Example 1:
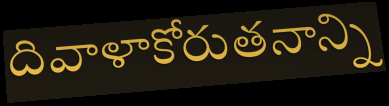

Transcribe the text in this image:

దివాళాకోరుతనాన్ని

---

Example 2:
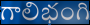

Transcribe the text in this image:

గాలిభంగి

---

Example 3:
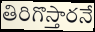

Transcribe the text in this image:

తిరిగొస్తారనే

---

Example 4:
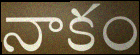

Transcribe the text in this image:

నాకం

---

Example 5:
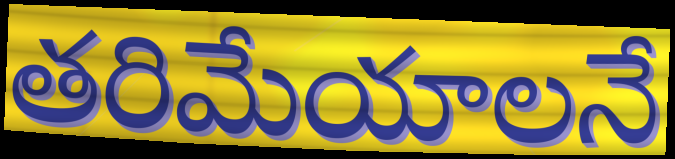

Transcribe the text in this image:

తరిమేయాలనే